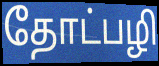
தோட்பழி